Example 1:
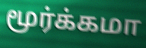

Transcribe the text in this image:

மூர்க்கமா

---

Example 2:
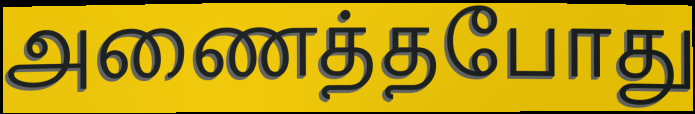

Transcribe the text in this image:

அணைத்தபோது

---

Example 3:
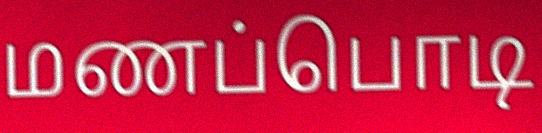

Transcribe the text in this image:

மணப்பொடி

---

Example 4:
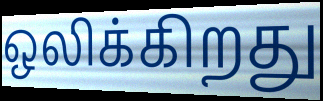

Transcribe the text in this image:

ஒலிக்கிறது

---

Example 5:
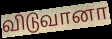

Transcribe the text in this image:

விடுவானா